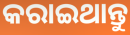
କରାଇଥାନ୍ତୁ